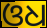
ଓଧ